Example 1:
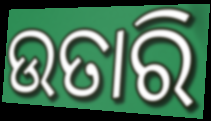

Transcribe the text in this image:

ଉତାରି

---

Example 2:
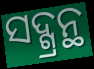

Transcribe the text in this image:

ସଦ୍ଗ୍ରନ୍ଥ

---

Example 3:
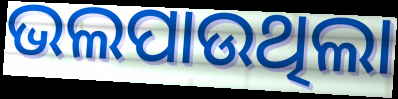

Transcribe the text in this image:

ଭଲପାଉଥିଲା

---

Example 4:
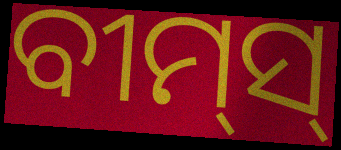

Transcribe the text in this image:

ବୀମ୍‌ସ୍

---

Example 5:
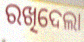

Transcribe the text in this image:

ରଖିଦେଲା